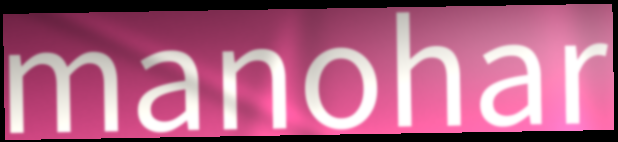
manohar